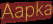
Aapka